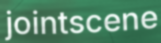
jointscene